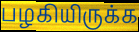
பழகியிருக்க